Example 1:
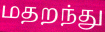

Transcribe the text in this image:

மதறந்து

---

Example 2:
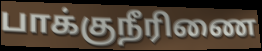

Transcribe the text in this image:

பாக்குநீரிணை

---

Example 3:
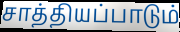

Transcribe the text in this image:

சாத்தியப்பாடும்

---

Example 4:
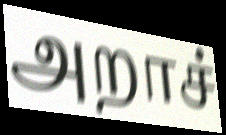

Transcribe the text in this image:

அறாச்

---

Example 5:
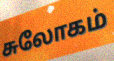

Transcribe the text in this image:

சுலோகம்